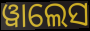
ୱାଲେସ